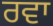
ਰਵਾ